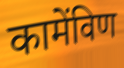
कामेंविण